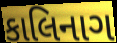
કાલિનાગ